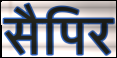
सैपिर